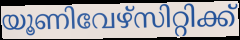
യൂണിവേഴ്സിറ്റിക്ക്